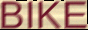
BIKE